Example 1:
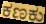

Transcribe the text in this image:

ಕಣಕು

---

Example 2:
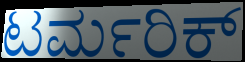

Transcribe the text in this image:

ಟರ್ಮರಿಕ್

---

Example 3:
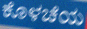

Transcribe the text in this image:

ಕೊಳಚೆಯ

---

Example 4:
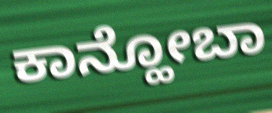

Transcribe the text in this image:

ಕಾನ್ಹೋಬಾ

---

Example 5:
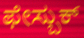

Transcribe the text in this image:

ಫೇಸ್ಬುಕ್